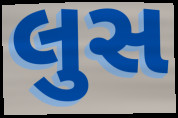
લુસ